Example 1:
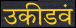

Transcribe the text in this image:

उकीडवं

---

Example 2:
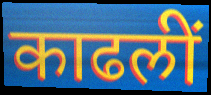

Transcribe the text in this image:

काढलीं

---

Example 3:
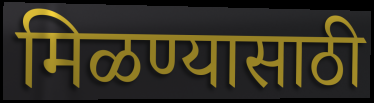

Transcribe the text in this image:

मिळण्यासाठी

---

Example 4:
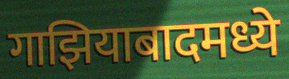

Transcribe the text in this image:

गाझियाबादमध्ये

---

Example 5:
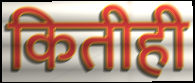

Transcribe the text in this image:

कितीही